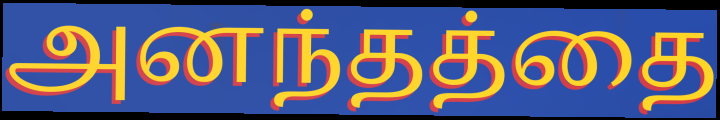
அனந்தத்தை